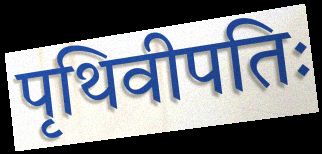
पृथिवीपतिः